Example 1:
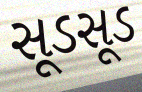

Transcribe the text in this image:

સૂડસૂડ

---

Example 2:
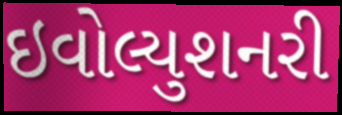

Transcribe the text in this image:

ઇવોલ્યુશનરી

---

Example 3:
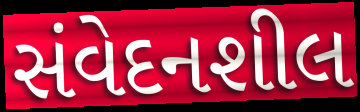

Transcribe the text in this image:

સંવેદનશીલ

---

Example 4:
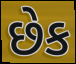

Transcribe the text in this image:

છેક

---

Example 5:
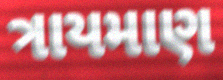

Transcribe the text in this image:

ત્રાયમાણ